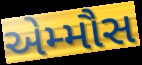
એમ્મૌસ